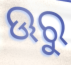
ଊରୁ